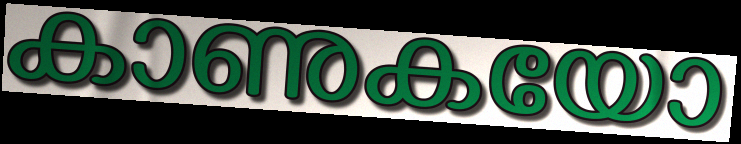
കാണുകയോ